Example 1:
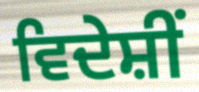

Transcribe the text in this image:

ਵਿਦੇਸ਼ੀਂ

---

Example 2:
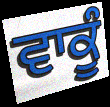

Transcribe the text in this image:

ਵਾਕੂੰ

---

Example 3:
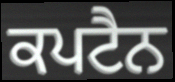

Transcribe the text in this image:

ਕਪਟੈਨ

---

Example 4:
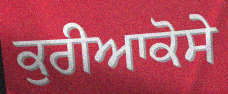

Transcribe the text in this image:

ਕੁਰੀਆਕੋਸੇ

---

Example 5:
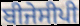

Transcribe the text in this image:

ਬੀਜੇਸੀਪੀ